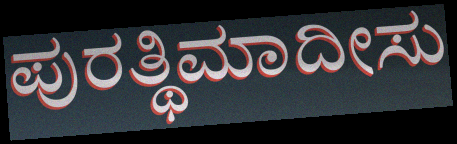
ಪುರತ್ಥಿಮಾದೀಸು